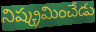
నిష్క్రమించేడు